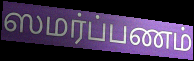
ஸமர்ப்பணம்